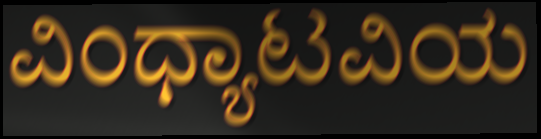
ವಿಂಧ್ಯಾಟವಿಯ